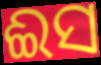
ଈସ